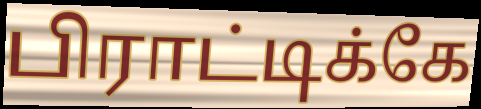
பிராட்டிக்கே